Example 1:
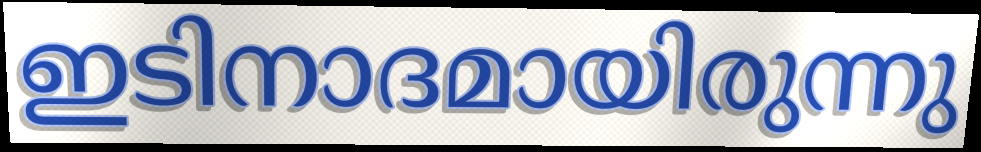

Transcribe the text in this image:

ഇടിനാദമായിരുന്നു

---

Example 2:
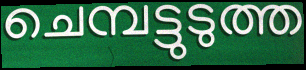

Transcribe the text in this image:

ചെമ്പട്ടുടുത്ത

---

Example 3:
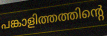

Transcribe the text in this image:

പങ്കാളിത്തത്തിന്റെ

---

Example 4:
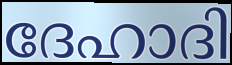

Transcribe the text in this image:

ദേഹാദി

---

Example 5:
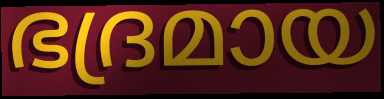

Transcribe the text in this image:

ഭദ്രമായ